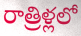
రాత్రిళ్లలో